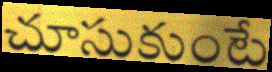
చూసుకుంటే